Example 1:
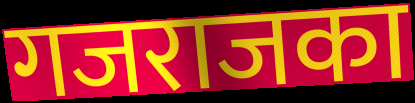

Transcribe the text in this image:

गजराजका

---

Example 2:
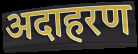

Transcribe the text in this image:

अदाहरण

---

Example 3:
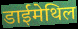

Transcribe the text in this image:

डाईमेथिल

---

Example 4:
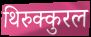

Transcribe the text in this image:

थिरुक्कुरल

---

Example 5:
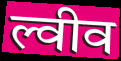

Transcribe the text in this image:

ल्वीव